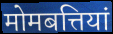
मोमबत्तियां